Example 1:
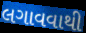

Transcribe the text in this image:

લગાવવાથી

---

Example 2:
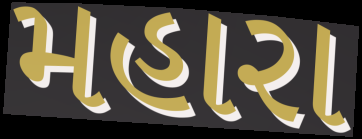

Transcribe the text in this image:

મહારા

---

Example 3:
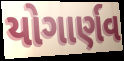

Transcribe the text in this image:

યોગાર્ણવ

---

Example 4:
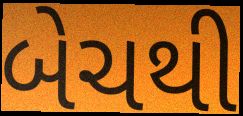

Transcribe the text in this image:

બેચથી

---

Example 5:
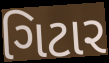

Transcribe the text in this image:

ગિટાર